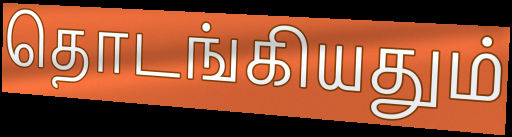
தொடங்கியதும்